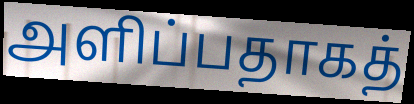
அளிப்பதாகத்